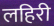
लहिरी